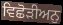
ਵਿਛੋੜੀਅਨੁ